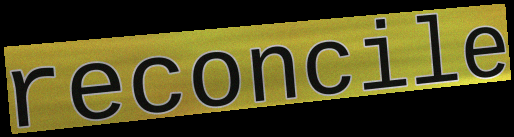
reconcile